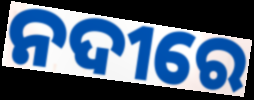
ନଦୀରେ